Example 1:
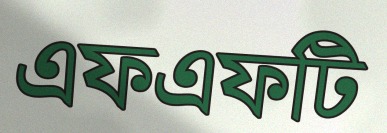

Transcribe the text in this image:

এফএফটি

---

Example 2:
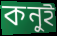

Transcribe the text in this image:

কনুই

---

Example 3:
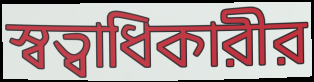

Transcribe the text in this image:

স্বত্বাধিকারীর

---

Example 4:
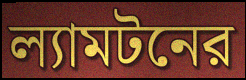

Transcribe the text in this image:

ল্যামটনের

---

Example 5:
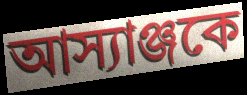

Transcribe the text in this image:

আস্যাঞ্জকে